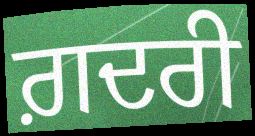
ਗ਼ਦਰੀ